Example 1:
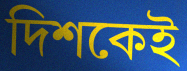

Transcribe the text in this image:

দিশকেই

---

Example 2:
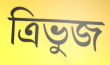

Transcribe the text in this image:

ত্ৰিভুজ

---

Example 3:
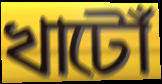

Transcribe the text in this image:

খাটোঁ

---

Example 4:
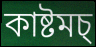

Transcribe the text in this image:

কাষ্টমচ্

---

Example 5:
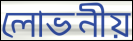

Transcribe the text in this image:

লোভনীয়